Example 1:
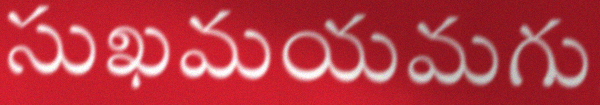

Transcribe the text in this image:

సుఖమయమగు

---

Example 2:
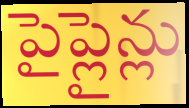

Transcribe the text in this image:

పైప్లైన్లు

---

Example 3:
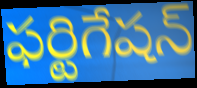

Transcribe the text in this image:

ఫర్టిగేషన్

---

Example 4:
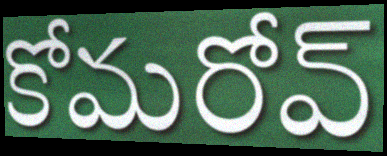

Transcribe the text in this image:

కోమరోవ్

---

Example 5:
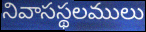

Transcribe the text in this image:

నివాసస్థలములు